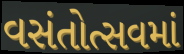
વસંતોત્સવમાં